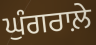
ਘੁੰਗਰਾਲ਼ੇ